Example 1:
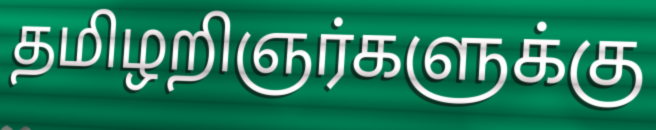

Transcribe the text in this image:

தமிழறிஞர்களுக்கு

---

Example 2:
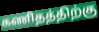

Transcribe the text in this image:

கணிதத்திற்கு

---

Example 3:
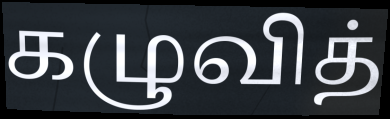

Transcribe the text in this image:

கழுவித்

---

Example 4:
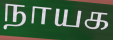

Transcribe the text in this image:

நாயக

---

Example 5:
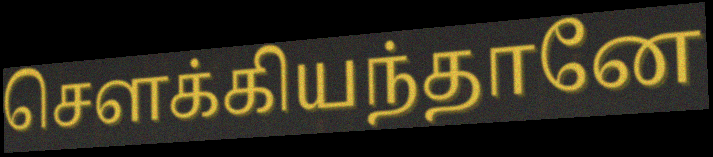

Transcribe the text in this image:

சௌக்கியந்தானே